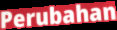
Perubahan